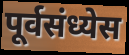
पूर्वसंध्येस